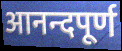
आनन्दपूर्ण